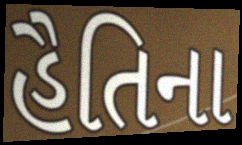
હૈતિના